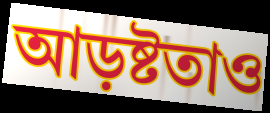
আড়ষ্টতাও